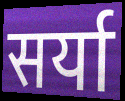
सर्या